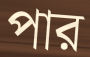
পার